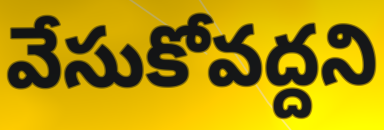
వేసుకోవద్దని